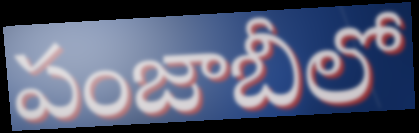
పంజాబీలో